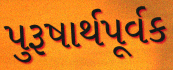
પુરૂષાર્થપૂર્વક